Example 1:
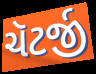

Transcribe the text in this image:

ચૅટર્જી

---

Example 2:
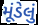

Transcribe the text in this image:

મૂંડેલું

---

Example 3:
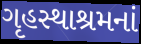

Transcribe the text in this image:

ગૃહસ્થાશ્રમનાં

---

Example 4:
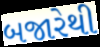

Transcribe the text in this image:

બજારેથી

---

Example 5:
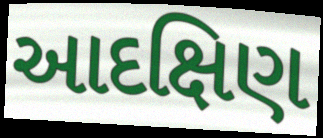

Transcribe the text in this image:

આદક્ષિણ